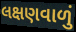
લક્ષણવાળું